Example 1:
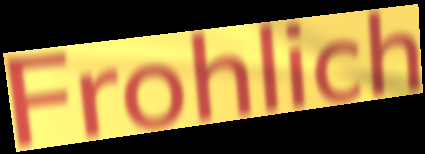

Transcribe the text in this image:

Frohlich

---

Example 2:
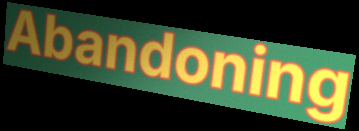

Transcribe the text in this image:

Abandoning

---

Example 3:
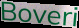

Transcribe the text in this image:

Boveri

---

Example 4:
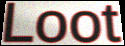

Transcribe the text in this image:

Loot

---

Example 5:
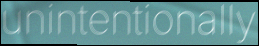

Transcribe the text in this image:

unintentionally